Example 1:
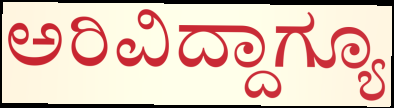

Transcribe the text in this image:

ಅರಿವಿದ್ದಾಗ್ಯೂ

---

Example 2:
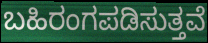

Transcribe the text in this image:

ಬಹಿರಂಗಪಡಿಸುತ್ತವೆ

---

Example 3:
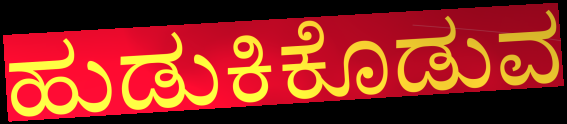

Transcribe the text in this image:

ಹುಡುಕಿಕೊಡುವ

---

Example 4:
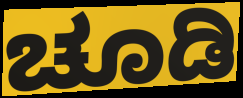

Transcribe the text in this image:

ಚೂಡಿ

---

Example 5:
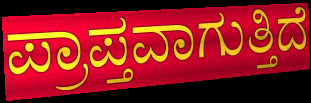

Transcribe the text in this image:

ಪ್ರಾಪ್ತವಾಗುತ್ತಿದೆ